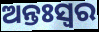
ଅନ୍ତଃସ୍ଵର